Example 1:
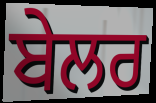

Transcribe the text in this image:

ਬੇਲਰ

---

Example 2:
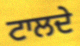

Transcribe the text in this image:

ਟਾਲਦੇ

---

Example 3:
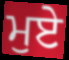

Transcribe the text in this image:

ਮੁਏ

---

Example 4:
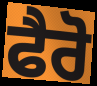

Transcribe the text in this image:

ਫੈਰੋ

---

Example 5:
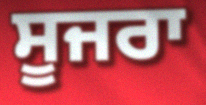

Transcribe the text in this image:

ਸੂਜਰਾ